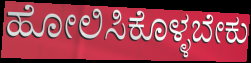
ಹೋಲಿಸಿಕೊಳ್ಳಬೇಕು